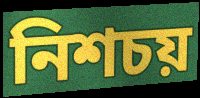
নিশচয়